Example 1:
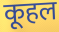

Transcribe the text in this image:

कूहल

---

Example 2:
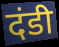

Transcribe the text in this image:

दंडी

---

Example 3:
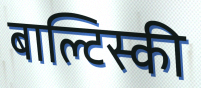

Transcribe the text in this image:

बाल्टिस्की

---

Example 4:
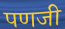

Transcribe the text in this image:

पणजी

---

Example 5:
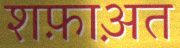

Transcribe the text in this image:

शफ़ाअ़त